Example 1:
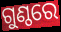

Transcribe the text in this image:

ଗୁଣ୍ଠରେ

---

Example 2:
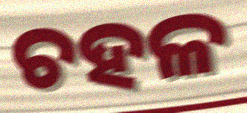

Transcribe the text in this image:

ଚହଳ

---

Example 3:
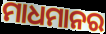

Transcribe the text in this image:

ମାଧମାନର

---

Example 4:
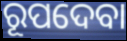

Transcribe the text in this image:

ରୂପଦେବା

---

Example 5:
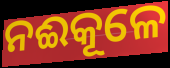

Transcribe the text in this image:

ନଈକୂଳେ